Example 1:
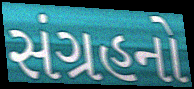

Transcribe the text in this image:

સંગ્રહનો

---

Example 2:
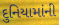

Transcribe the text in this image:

દુનિયામાંની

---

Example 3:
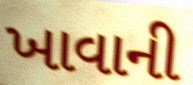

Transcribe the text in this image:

ખાવાની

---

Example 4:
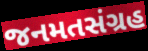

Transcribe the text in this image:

જનમતસંગ્રહ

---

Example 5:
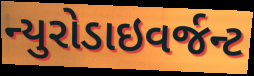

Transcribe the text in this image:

ન્યુરોડાઇવર્જન્ટ